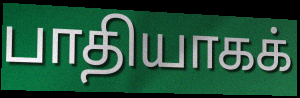
பாதியாகக்